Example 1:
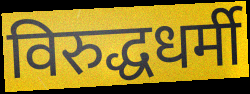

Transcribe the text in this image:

विरुद्धधर्मी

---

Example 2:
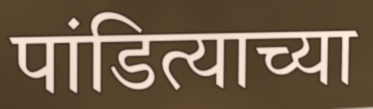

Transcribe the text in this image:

पांडित्याच्या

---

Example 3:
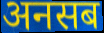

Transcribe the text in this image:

अनसब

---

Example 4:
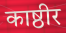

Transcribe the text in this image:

काष्ठीर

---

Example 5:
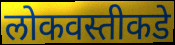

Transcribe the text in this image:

लोकवस्तीकडे